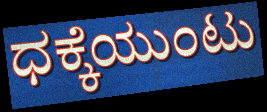
ಧಕ್ಕೆಯುಂಟು